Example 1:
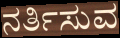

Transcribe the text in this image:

ನರ್ತಿಸುವ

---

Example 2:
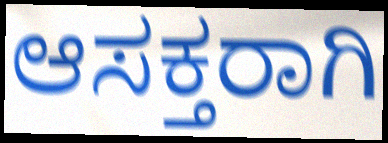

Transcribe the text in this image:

ಆಸಕ್ತರಾಗಿ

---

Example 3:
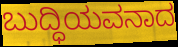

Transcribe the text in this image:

ಬುದ್ಧಿಯವನಾದ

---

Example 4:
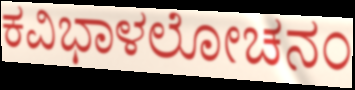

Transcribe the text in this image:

ಕವಿಭಾಳಲೋಚನಂ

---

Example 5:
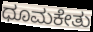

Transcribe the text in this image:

ಧೂಮಕೇತು